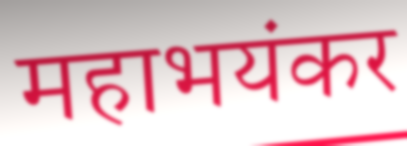
महाभयंकर